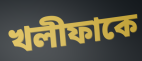
খলীফাকে